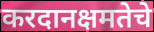
करदानक्षमतेचे